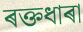
ৰক্তধাৰা